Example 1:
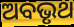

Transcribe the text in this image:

ଅବଭୃଥ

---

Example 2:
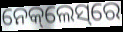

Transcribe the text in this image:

ନେକ୍‌ଲେସ୍‌ରେ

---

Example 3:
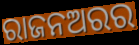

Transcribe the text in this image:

ରାଜନଅରର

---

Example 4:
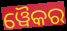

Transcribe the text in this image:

ୱୈକର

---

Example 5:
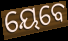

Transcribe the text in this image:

ୟେବେ